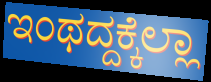
ಇಂಥದ್ದಕ್ಕೆಲ್ಲಾ